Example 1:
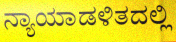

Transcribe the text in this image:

ನ್ಯಾಯಾಡಳಿತದಲ್ಲಿ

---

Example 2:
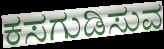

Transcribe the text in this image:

ಕಸಗುಡಿಸುವ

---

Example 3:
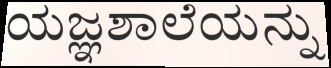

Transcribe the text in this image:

ಯಜ್ಞಶಾಲೆಯನ್ನು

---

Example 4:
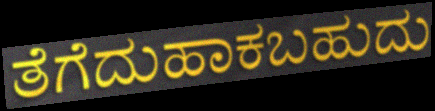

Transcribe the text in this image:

ತೆಗೆದುಹಾಕಬಹುದು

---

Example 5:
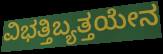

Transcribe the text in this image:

ವಿಭತ್ತಿಬ್ಯತ್ತಯೇನ